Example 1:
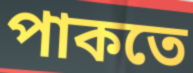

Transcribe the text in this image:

পাকতে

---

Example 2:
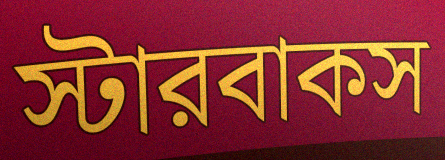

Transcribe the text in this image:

স্টারবাকস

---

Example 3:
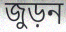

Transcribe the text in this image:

জুড়ন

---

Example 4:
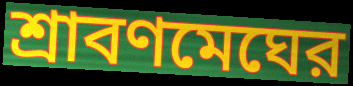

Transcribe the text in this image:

শ্রাবণমেঘের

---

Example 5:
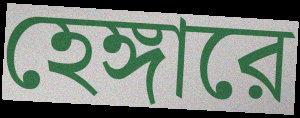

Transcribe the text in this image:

হেঙ্গারে